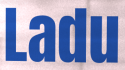
Ladu